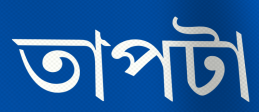
তাপটা